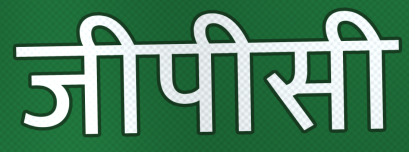
जीपीसी